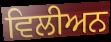
ਵਿਲੀਅਨ